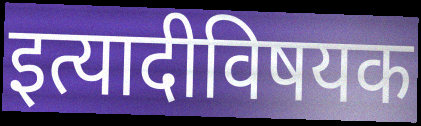
इत्यादीविषयक